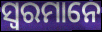
ସ୍ୱରମାନେ